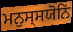
ਮਨੁਸ੍ਸਯੋਨਿਂ